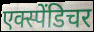
एक्स्पेंडिचर